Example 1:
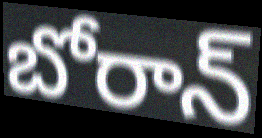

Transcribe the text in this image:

బోరాన్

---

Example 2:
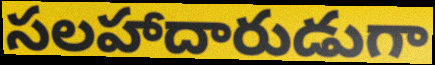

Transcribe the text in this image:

సలహాదారుడుగా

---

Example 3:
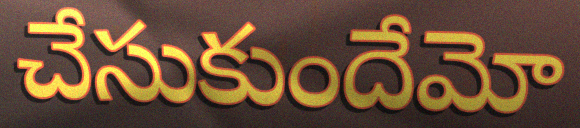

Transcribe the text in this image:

చేసుకుందేమో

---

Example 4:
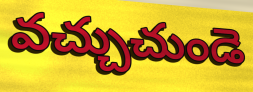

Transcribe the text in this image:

వచ్చుచుండె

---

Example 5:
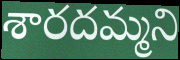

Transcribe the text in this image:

శారదమ్మని